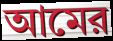
আমের